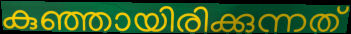
കുഞ്ഞായിരിക്കുന്നത്